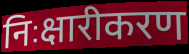
निःक्षारीकरण